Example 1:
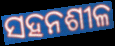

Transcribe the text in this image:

ସହନଶୀଳ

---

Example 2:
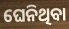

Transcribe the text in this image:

ଘେନିଥିବା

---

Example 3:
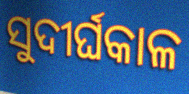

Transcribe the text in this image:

ସୁଦୀର୍ଘକାଳ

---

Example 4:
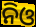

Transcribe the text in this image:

ନିଓ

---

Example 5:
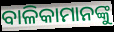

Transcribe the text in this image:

ବାଳିକାମାନଙ୍କୁ